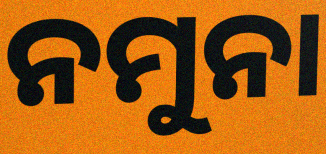
ନମୁନା